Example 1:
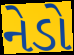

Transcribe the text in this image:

નેડો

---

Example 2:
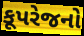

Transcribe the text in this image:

કૂપરેજનો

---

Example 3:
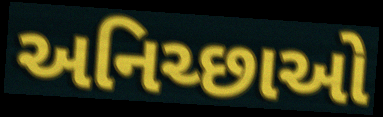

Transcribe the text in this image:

અનિચ્છાઓ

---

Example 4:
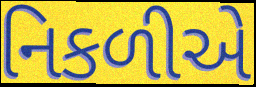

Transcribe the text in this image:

નિકળીએ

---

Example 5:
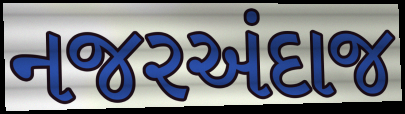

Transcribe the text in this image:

નજરઅંદાજ